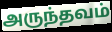
அருந்தவம்